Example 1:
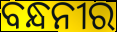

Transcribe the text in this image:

ବନ୍ଧନୀର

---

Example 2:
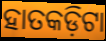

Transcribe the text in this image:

ହାତକଡ଼ିଟା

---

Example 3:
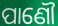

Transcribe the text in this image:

ପାଣୌ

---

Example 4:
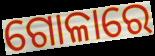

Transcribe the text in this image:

ଗୋଳାରେ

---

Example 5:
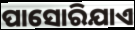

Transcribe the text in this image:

ପାସୋରିଯାଏ